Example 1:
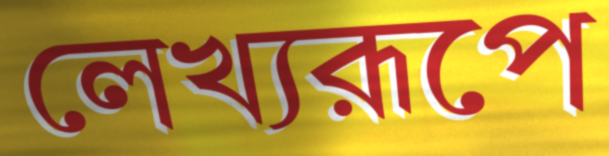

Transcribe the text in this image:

লেখ্যরূপে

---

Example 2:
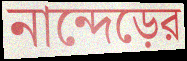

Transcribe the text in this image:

নান্দেড়ের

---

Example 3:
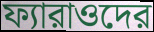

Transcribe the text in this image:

ফ্যারাওদের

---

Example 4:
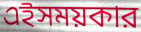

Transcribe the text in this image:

এইসময়কার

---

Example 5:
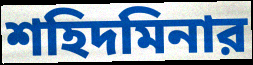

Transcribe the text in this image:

শহিদমিনার